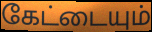
கேட்டையும்